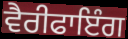
ਵੈਰੀਫਾਇੰਗ